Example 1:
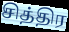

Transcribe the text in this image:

சித்திர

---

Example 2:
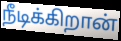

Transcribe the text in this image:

நீடிக்கிறான்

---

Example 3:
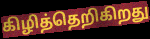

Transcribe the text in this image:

கிழித்தெறிகிறது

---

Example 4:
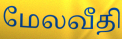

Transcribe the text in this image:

மேலவீதி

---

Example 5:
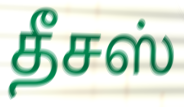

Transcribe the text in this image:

தீசஸ்